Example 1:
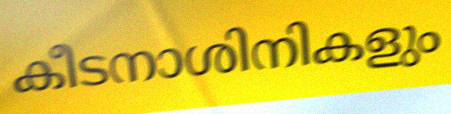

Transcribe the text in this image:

കീടനാശിനികളും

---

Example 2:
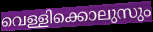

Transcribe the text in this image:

വെള്ളിക്കൊലുസും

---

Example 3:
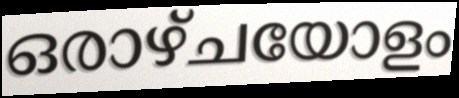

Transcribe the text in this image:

ഒരാഴ്ചയോളം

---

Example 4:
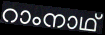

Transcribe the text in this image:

റാംനാഥ്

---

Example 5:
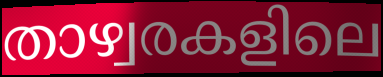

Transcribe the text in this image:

താഴ്വരകളിലെ